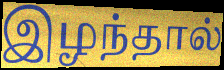
இழந்தால்